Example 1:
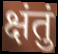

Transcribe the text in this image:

क्षंतुं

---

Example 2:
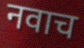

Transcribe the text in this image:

नवाच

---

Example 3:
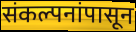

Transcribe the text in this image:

संकल्पनांपासून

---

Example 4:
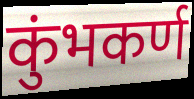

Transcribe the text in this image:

कुंभकर्ण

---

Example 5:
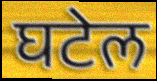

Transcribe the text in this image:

घटेल